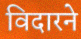
विदारने